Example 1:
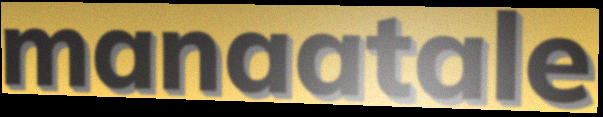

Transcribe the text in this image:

manaatale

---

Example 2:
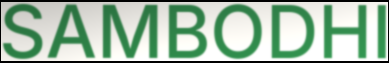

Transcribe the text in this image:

SAMBODHI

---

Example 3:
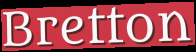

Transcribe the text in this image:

Bretton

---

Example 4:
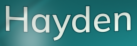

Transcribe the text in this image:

Hayden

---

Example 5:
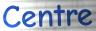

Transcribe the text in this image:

Centre